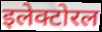
इलेक्टोरल